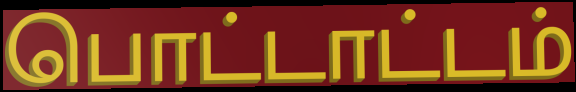
பொட்டாட்டம்